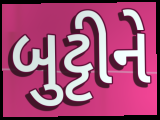
બુટ્ટીને